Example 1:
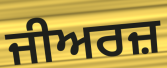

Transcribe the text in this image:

ਜੀਅਰਜ਼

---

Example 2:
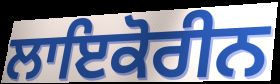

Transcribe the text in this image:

ਲਾਇਕੋਰੀਨ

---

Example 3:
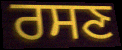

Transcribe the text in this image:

ਰਸਣ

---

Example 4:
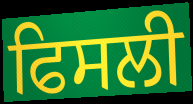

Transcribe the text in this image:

ਫਿਸਲੀ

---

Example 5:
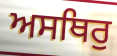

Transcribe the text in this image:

ਅਸਥਿਰੁ